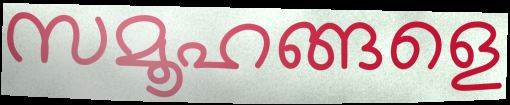
സമൂഹങ്ങളെ